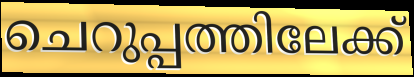
ചെറുപ്പത്തിലേക്ക്